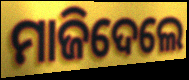
ମାଜିଦେଲେ